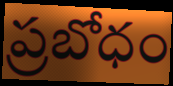
ప్రబోధం